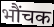
भौंचक